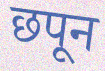
छपून